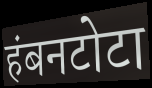
हंबनटोटा